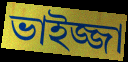
ভাইজ্জা